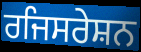
ਰਜਿਸਰੇਸ਼ਨ